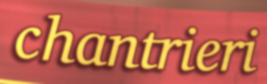
chantrieri